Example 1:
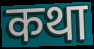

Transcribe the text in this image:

कथा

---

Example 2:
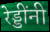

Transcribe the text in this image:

रेड्डींनी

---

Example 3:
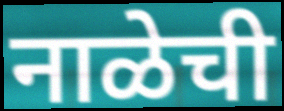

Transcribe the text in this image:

नाळेची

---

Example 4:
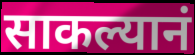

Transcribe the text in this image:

साकल्यानं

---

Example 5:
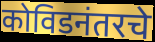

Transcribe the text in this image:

कोविडनंतरचे